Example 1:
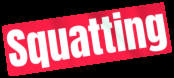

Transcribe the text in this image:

Squatting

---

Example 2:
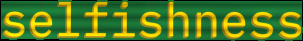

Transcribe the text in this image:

selfishness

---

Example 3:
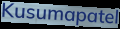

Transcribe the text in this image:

Kusumapatel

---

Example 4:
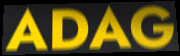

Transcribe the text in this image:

ADAG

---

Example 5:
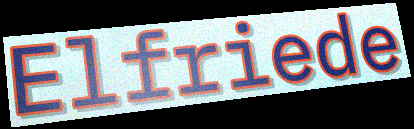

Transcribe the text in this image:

Elfriede